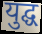
युद्घ